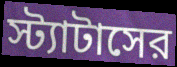
স্ট্যাটাসের